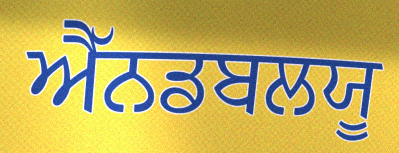
ਐੱਨਡਬਲਯੂ